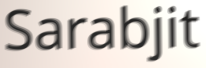
Sarabjit